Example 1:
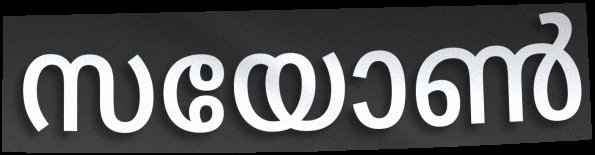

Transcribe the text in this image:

സയോൺ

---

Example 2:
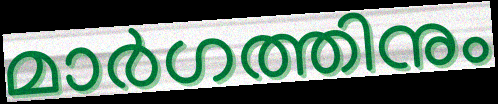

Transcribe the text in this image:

മാർഗത്തിനും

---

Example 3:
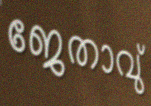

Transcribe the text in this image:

ജേതാവു്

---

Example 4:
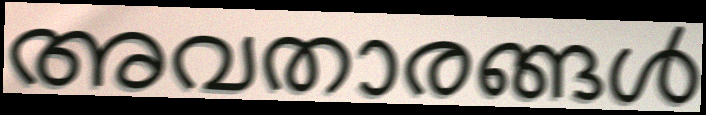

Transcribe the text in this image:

അവതാരങ്ങൾ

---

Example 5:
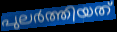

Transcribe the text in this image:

പുലർത്തിയത്